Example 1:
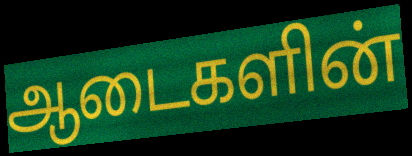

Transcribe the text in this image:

ஆடைகளின்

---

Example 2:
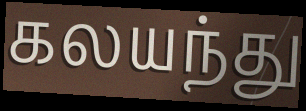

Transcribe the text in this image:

கலயந்து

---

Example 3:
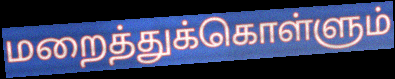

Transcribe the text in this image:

மறைத்துக்கொள்ளும்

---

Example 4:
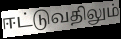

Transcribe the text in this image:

ஈட்டுவதிலும்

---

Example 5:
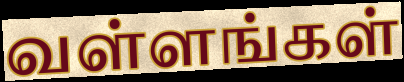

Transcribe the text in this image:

வள்ளங்கள்